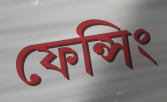
ফেন্সিং